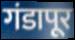
गंडापूर